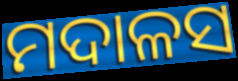
ମଦାଳସ